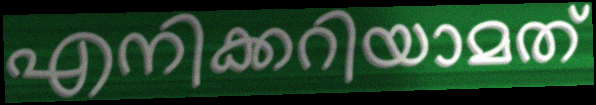
എനിക്കറിയാമത്